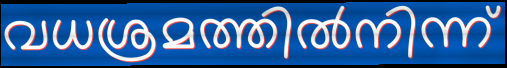
വധശ്രമത്തിൽനിന്ന്